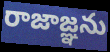
రాజాజ్ఞను